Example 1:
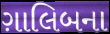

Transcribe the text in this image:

ગ઼ાલિબના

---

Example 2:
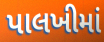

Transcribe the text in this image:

પાલખીમાં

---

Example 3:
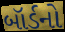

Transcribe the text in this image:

બૉર્ડનો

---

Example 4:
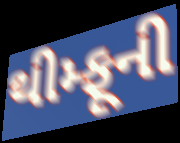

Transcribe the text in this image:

થીમ્ફૂની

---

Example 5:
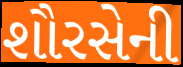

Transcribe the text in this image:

શૌરસેની